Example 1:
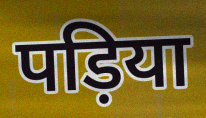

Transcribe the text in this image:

पड़िया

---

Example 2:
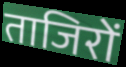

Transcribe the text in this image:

ताजिरों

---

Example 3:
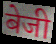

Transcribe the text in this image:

बेजी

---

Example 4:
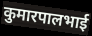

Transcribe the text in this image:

कुमारपालभाई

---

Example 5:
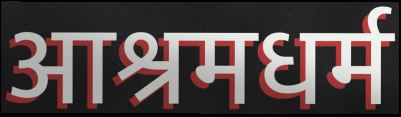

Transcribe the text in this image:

आश्रमधर्म